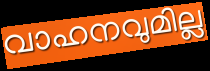
വാഹനവുമില്ല